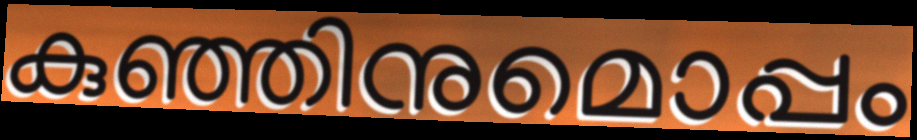
കുഞ്ഞിനുമൊപ്പം